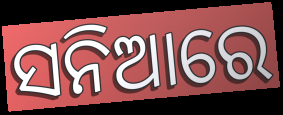
ସନିଆରେ